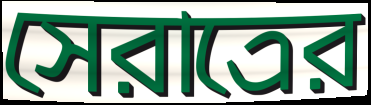
সেরাত্রের